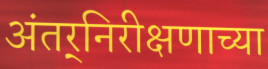
अंतर्निरीक्षणाच्या